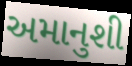
અમાનુશી